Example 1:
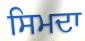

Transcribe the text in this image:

ਸਿਮਦਾ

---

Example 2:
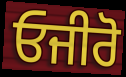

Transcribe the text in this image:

ਓਜੀਰੋ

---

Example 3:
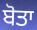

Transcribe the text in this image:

ਬੋਤਾ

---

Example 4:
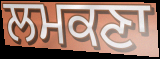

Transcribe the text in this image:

ਲਮਕਣਾ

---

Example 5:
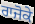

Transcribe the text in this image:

ਰਾਜੋਕੇ